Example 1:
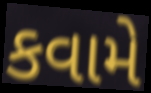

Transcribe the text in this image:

કવામે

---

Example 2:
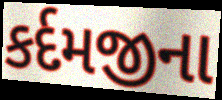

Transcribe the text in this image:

કર્દમજીના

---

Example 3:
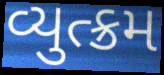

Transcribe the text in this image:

વ્યુત્ક્રમ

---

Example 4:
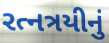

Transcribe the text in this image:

રત્નત્રયીનું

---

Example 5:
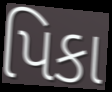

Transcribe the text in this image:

પિકા